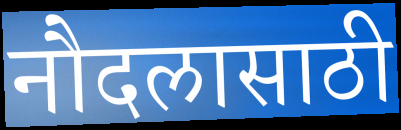
नौदलासाठी